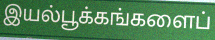
இயல்பூக்கங்களைப்